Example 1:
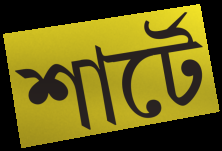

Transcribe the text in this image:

শার্টে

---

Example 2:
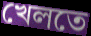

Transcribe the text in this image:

খেলতে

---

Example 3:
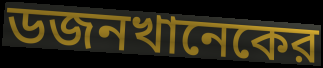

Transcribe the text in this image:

ডজনখানেকের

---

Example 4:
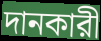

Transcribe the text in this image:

দানকারী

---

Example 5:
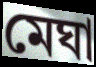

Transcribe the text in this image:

মেঘা